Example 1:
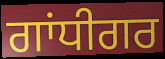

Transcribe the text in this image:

ਗਾਂਧੀਗਰ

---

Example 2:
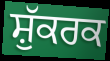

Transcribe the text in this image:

ਸ਼ੁੱਕਰਕ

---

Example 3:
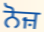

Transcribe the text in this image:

ਨੋਜ਼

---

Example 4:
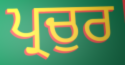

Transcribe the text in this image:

ਪ੍ਰਚੁਰ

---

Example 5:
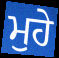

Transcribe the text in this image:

ਮੁਹੇ